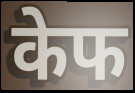
केफ